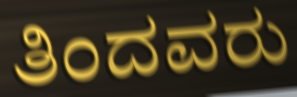
ತಿಂದವರು